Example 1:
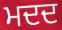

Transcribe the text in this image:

ਮਦਦ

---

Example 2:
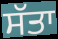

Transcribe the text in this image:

ਸੱਤਾ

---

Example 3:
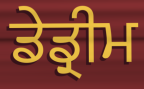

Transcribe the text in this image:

ਡੇਡ੍ਰੀਮ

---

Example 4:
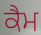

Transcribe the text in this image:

ਕੈਮ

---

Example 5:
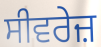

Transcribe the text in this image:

ਸੀਵਰੇਜ਼